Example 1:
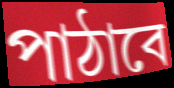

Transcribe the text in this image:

পাঠাবে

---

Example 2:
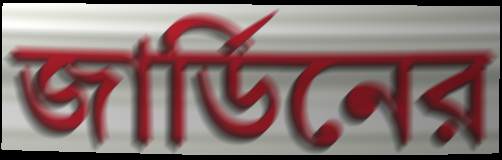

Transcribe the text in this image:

জার্ডিনের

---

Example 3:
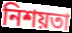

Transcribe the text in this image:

নিশয়তা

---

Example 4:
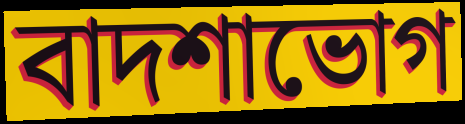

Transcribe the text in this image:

বাদশাভোগ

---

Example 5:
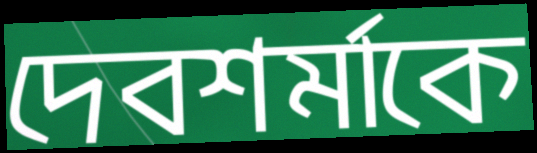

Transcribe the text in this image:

দেবশর্মাকে